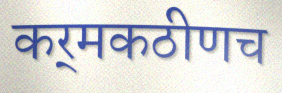
कर्मकठीणच